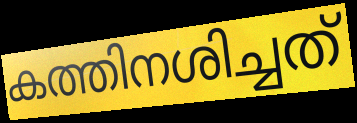
കത്തിനശിച്ചത്